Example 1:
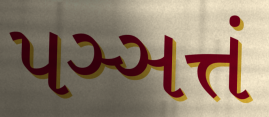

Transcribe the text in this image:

પઞ્ઞત્તં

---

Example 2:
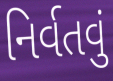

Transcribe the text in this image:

નિર્વતવું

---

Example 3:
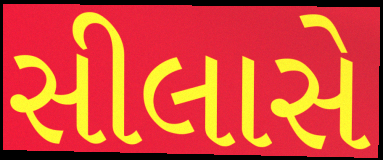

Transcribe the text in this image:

સીલાસે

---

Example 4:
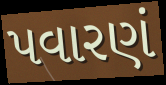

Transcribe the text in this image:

પવારણં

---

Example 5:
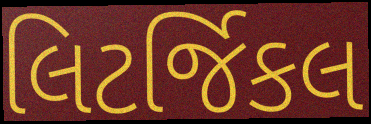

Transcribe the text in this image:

લિટર્જિકલ